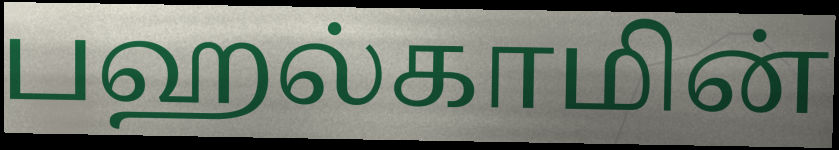
பஹல்காமின்